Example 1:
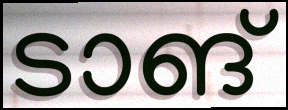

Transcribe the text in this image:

ടാങ്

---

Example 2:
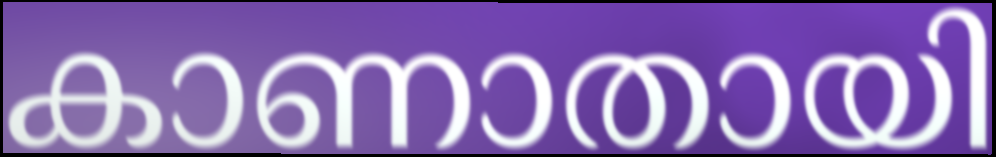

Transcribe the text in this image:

കാണാതായി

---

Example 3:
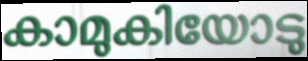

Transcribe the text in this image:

കാമുകിയോടു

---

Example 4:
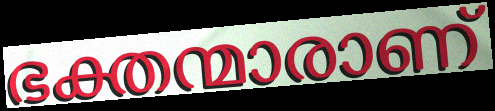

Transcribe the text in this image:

ഭക്തന്മാരാണ്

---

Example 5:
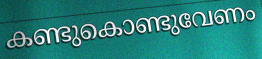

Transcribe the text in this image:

കണ്ടുകൊണ്ടുവേണം